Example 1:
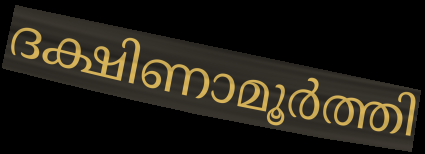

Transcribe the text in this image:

ദക്ഷിണാമൂർത്തി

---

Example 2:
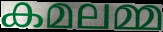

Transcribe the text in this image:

കമലമ്മ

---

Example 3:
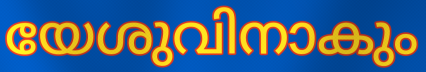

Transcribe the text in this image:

യേശുവിനാകും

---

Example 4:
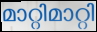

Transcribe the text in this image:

മാറ്റിമാറ്റി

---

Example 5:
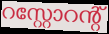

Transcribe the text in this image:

റസ്റ്റോറന്റ്